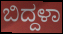
ಬಿದ್ದಳಾ